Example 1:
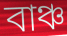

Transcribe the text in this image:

বাঞ্চ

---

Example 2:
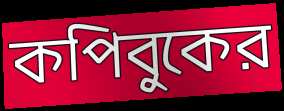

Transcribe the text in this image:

কপিবুকের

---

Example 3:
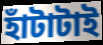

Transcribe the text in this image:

হাঁটাটাই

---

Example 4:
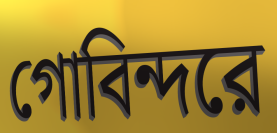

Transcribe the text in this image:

গোবিন্দরে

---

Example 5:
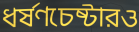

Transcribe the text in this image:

ধর্ষণচেষ্টারও